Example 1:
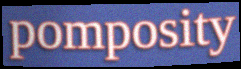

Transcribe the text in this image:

pomposity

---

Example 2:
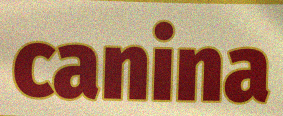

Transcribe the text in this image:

canina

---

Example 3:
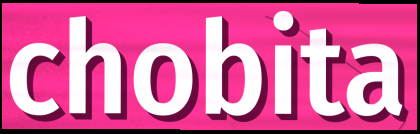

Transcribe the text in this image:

chobita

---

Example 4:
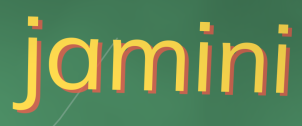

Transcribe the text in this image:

jamini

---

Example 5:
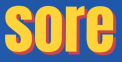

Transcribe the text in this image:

sore